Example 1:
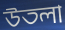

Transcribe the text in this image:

উতলা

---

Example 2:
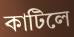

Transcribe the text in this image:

কাটিলে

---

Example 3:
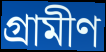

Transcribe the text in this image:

গ্ৰামীণ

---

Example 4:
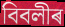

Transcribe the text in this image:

বিবলীৰ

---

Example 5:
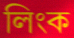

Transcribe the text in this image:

লিংক